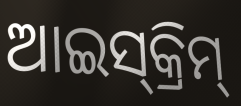
ଆଇସ୍‍କ୍ରିମ୍